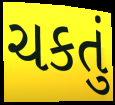
ચકતું